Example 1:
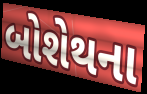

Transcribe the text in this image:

બોશેથના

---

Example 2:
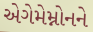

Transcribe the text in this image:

એગેમેમ્નોનને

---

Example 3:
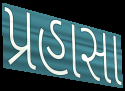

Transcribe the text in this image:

પ્રહાસા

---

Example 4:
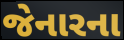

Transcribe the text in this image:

જેનારના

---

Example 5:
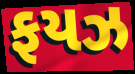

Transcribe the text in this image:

ફયઝ